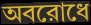
অবরোধে